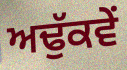
ਅਢੁੱਕਵੇਂ